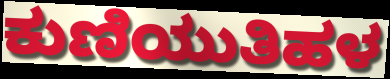
ಕುಣಿಯುತಿಹಳ